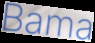
Bama